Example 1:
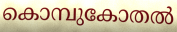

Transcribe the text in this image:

കൊമ്പുകോതൽ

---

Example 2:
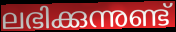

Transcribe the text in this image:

ലഭിക്കുന്നുണ്ട്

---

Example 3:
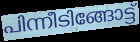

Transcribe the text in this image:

പിന്നീടിങ്ങോട്ട്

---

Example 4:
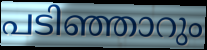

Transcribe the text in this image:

പടിഞ്ഞാറും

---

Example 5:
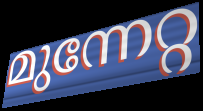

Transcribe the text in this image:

മുന്നേറ്റ